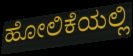
ಹೋಲಿಕೆಯಲ್ಲಿ